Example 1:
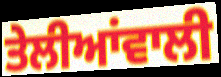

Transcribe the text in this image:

ਤੇਲੀਆਂਵਾਲੀ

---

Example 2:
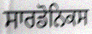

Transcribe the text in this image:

ਸਾਰਡੋਨਿਕਸ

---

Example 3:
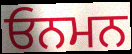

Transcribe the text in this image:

ਓਨਮਨ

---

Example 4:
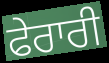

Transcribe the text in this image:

ਫੇਰਾਰੀ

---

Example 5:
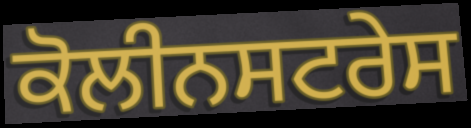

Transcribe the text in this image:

ਕੋਲੀਨਸਟਰੇਸ